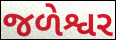
જળેશ્વર